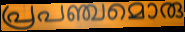
പ്രപഞ്ചമൊരു